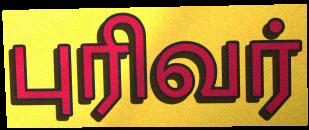
புரிவர்